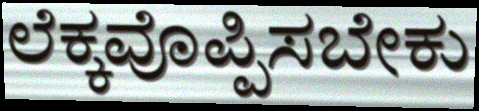
ಲೆಕ್ಕವೊಪ್ಪಿಸಬೇಕು